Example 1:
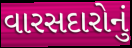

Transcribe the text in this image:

વારસદારોનું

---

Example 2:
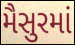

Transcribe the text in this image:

મૈસુરમાં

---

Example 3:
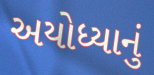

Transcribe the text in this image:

અયોધ્યાનું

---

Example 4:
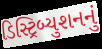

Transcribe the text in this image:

ડિસ્ટ્રિબ્યુશનનું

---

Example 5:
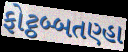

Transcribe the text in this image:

ફોટ્ઠબ્બતણ્હા